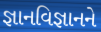
જ્ઞાનવિજ્ઞાનને